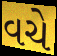
વચે